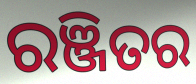
ରଞ୍ଜିତର